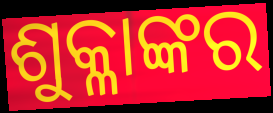
ଶୁକ୍ଳାଙ୍କର